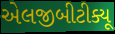
એલજીબીટીક્યૂ